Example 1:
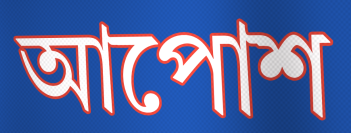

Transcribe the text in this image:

আপোশ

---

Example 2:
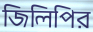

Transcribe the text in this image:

জিলিপির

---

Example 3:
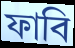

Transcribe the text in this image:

ফাবি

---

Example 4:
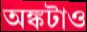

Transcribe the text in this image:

অঙ্কটাও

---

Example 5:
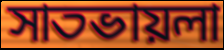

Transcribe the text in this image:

সাতভায়লা